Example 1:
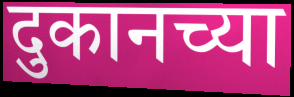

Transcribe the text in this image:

दुकानच्या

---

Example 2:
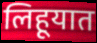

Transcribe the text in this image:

लिहूयात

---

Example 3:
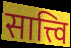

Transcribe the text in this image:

सात्त्वि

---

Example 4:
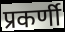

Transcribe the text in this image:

प्रकर्णी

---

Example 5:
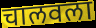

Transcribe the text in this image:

चालवला